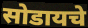
सोडायचे